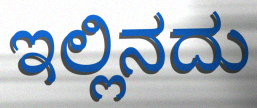
ಇಲ್ಲಿನದು